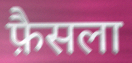
फ़ैसला